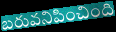
బరువనిపించింది